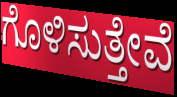
ಗೊಳಿಸುತ್ತೇವೆ